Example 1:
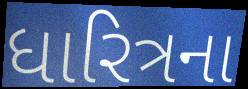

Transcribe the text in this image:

ધારિત્રના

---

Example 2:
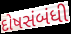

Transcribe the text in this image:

દોષસંબંધી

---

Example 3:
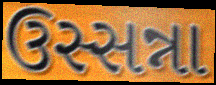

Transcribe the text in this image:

ઉસ્સન્ના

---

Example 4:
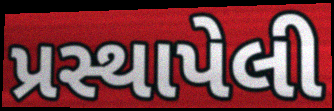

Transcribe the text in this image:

પ્રસ્થાપેલી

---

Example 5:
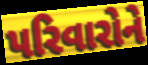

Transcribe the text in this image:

પરિવારોને